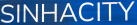
SINHACITY